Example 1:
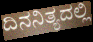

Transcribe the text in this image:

ದಿನನಿತ್ಯದಲ್ಲಿ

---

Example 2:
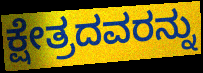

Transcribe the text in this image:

ಕ್ಷೇತ್ರದವರನ್ನು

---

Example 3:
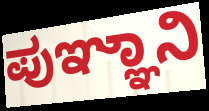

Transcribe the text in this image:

ಪುಞ್ಞಾನಿ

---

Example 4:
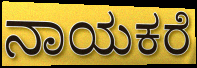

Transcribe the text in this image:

ನಾಯಕರೆ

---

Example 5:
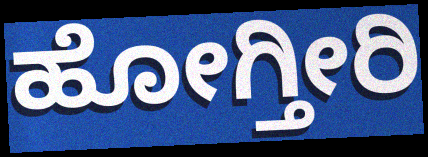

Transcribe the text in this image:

ಹೋಗ್ತೀರಿ